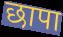
छापा